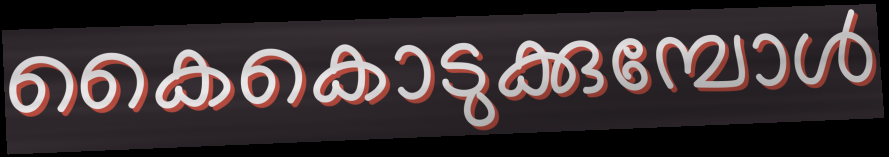
കൈകൊടുക്കുമ്പോൾ